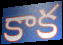
కాక